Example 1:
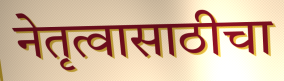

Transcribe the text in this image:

नेतृत्वासाठीचा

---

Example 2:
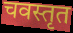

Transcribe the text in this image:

चवस्तृत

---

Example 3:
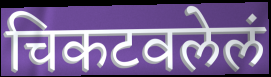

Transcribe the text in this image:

चिकटवलेलं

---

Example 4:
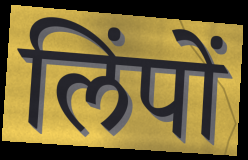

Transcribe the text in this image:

लिंपों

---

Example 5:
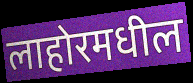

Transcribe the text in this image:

लाहोरमधील